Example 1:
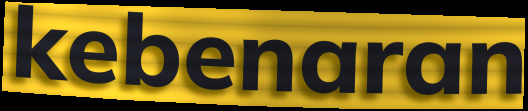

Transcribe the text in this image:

kebenaran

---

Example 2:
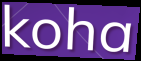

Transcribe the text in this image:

koha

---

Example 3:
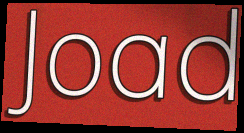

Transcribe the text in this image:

Joad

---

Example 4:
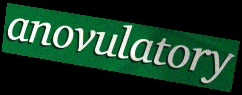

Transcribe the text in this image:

anovulatory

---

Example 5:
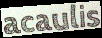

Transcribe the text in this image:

acaulis